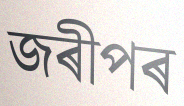
জৰীপৰ